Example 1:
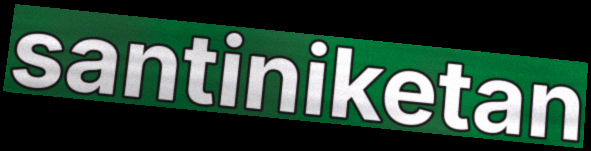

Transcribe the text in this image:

santiniketan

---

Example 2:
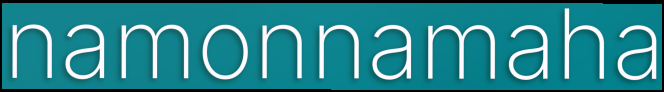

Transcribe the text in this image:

namonnamaha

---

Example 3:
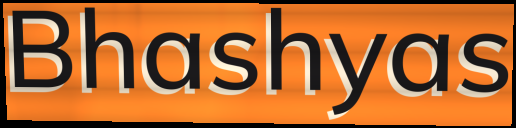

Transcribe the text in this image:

Bhashyas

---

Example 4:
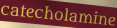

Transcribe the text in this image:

catecholamine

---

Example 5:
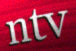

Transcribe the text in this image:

ntv